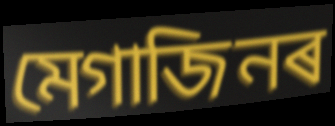
মেগাজিনৰ